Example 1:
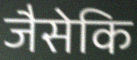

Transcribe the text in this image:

जैसेकि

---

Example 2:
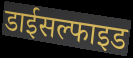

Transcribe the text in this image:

डाईसल्फाइड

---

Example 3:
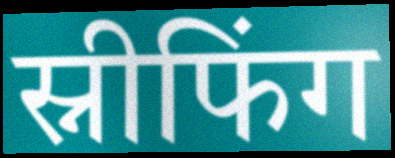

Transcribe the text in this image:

स्नीफिंग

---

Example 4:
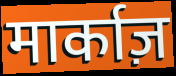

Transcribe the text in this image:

मार्काज़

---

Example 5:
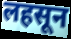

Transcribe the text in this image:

लहसून